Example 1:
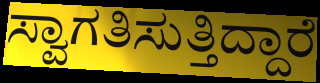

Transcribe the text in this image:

ಸ್ವಾಗತಿಸುತ್ತಿದ್ದಾರೆ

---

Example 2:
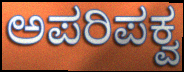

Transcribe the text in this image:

ಅಪರಿಪಕ್ವ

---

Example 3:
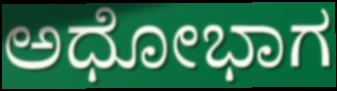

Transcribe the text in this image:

ಅಧೋಭಾಗ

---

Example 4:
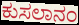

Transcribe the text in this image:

ಕುಸಲಾನಂ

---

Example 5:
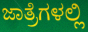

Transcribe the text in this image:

ಜಾತ್ರೆಗಳಲ್ಲಿ